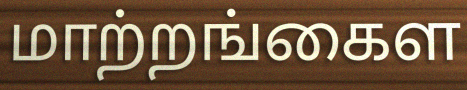
மாற்றங்கைள